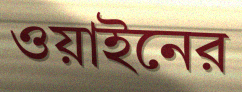
ওয়াইনের